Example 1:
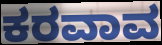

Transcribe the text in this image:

ಕರವಾವ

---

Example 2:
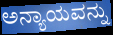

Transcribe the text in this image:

ಅನ್ಯಾಯವನ್ನು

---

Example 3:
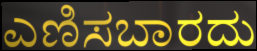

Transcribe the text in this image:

ಎಣಿಸಬಾರದು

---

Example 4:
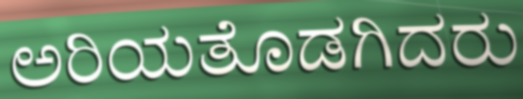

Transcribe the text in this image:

ಅರಿಯತೊಡಗಿದರು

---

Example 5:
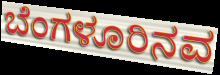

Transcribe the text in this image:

ಬೆಂಗಳೂರಿನವ